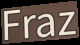
Fraz